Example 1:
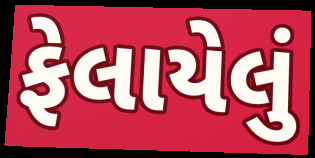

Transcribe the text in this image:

ફેલાયેલું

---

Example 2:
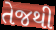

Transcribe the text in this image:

તેજથી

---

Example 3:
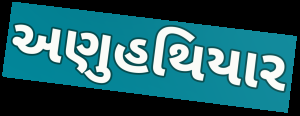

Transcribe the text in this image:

અણુહથિયાર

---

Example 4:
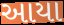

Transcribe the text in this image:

આયા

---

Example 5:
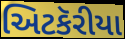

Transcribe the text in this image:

અિટકૅરીયા